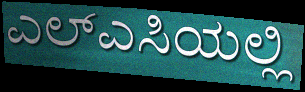
ಎಲ್ಎಸಿಯಲ್ಲಿ